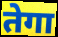
तेगा